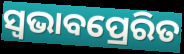
ସ୍ୱଭାବପ୍ରେରିତ